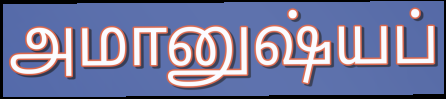
அமானுஷ்யப்